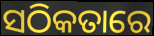
ସଠିକତାରେ